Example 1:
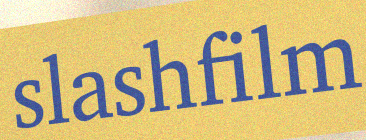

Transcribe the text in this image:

slashfilm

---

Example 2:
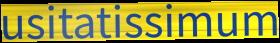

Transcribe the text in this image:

usitatissimum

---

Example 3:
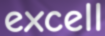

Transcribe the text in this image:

excell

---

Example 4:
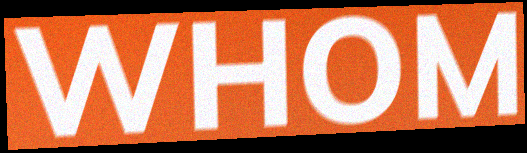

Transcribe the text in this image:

WHOM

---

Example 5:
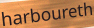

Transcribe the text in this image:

harboureth